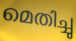
മെതിച്ചു